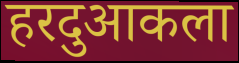
हरदुआकला